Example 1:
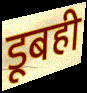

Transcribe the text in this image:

डूबही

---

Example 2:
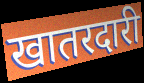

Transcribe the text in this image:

खातरदारी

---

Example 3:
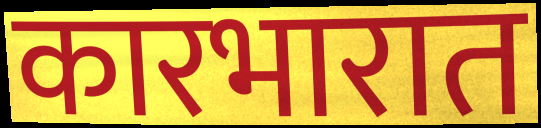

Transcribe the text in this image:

कारभारात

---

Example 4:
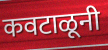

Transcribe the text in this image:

कवटाळूनी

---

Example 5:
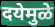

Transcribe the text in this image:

दयेमुळे